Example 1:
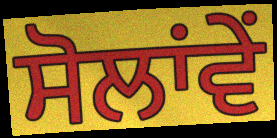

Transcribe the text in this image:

ਸੋਲਾਂਵੇਂ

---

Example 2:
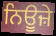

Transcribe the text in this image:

ਨਿਊਜ਼ੇ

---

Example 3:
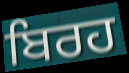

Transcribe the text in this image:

ਬਿਰਹ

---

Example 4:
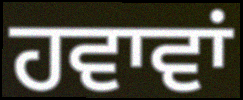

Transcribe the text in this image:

ਹਵਾਵਾਂ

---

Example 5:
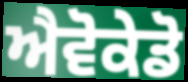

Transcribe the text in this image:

ਐਵੋਕੇਡੋ